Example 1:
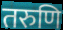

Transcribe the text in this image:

तरुणि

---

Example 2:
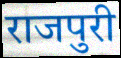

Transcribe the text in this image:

राजपुरी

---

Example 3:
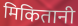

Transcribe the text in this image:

मिकितानी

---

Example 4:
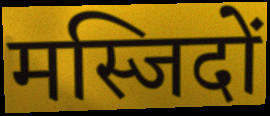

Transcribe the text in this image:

मस्जिदों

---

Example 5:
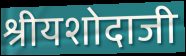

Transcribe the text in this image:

श्रीयशोदाजी